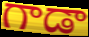
గాడా